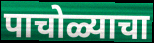
पाचोळ्याचा